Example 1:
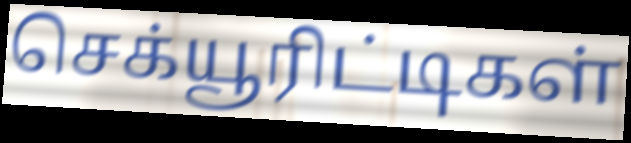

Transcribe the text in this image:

செக்யூரிட்டிகள்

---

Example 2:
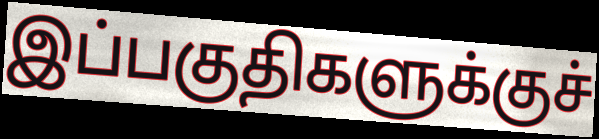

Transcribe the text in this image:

இப்பகுதிகளுக்குச்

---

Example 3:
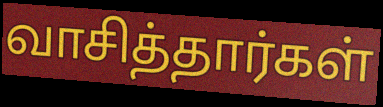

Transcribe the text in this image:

வாசித்தார்கள்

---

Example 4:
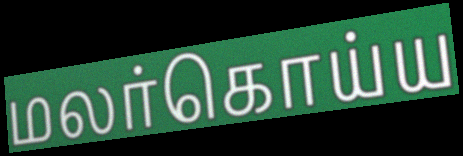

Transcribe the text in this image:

மலர்கொய்ய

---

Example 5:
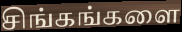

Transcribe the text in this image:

சிங்கங்களை